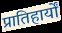
प्रातिहार्यों